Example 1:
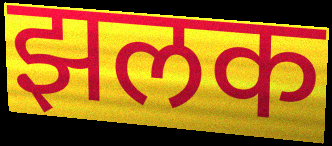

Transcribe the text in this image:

झलक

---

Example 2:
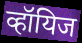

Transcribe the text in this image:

व्हॉयिज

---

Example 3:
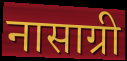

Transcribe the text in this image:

नासाग्री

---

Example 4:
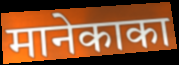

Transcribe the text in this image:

मानेकाका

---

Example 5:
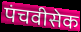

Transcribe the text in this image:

पंचवीसेक